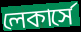
লেকার্সে